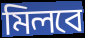
মিলবে